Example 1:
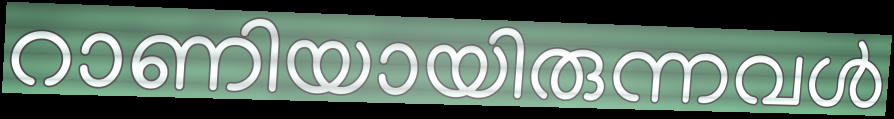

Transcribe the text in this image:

റാണിയായിരുന്നവൾ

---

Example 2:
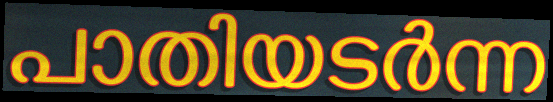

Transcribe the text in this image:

പാതിയടർന്ന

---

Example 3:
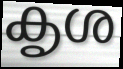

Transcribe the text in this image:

കൃശ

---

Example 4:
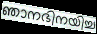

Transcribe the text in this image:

ഞാനഭിനയിച്ച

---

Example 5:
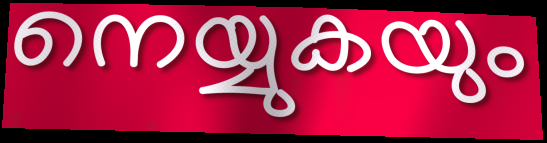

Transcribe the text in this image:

നെയ്യുകയും